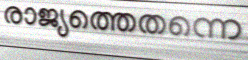
രാജ്യത്തെതന്നെ